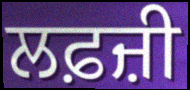
ਲਫ਼ਜ਼ੀ